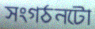
সংগঠনটো